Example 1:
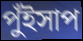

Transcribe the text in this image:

পুঁইসাপ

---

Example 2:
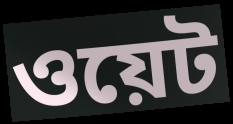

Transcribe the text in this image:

ওয়েট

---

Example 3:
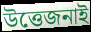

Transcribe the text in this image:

উত্তেজনাই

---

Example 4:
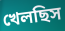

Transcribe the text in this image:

খেলছিস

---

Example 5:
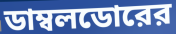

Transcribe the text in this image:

ডাম্বলডোরের